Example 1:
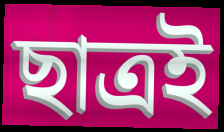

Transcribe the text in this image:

ছাত্রই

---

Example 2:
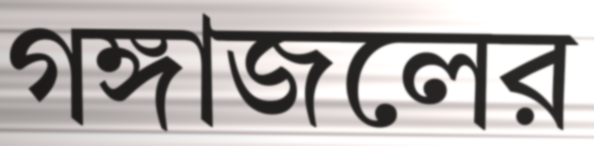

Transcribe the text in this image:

গঙ্গাজলের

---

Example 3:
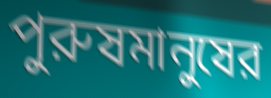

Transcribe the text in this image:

পুরুষমানুষের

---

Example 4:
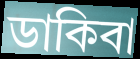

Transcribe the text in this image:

ডাকিবা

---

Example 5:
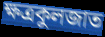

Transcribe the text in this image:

ক্ষত্রকুলজাত